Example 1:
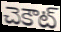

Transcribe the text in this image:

చెకౌట్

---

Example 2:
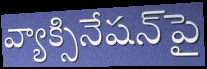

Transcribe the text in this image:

వ్యాక్సినేషన్‌పై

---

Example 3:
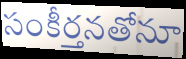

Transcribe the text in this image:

సంకీర్తనతోనూ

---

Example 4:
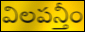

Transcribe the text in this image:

విలపన్తీం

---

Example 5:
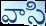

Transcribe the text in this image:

వాసి